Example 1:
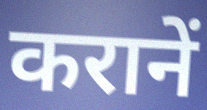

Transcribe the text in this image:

करानें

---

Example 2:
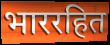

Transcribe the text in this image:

भाररहित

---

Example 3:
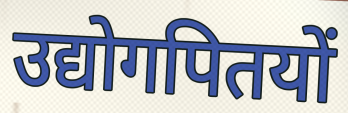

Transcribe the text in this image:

उद्योगपितयों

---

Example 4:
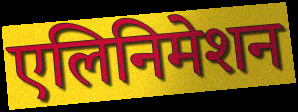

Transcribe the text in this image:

एलिनिमेशन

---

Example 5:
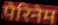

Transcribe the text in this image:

पेरिनेम